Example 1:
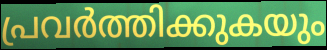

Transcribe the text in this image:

പ്രവർത്തിക്കുകയും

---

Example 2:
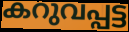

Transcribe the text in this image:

കറുവപ്പട്ട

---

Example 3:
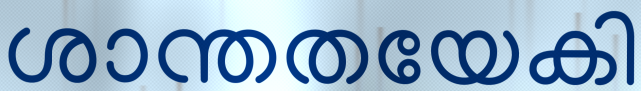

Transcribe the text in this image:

ശാന്തതയേകി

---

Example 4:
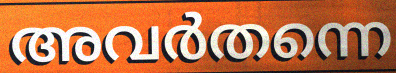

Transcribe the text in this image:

അവർതന്നെ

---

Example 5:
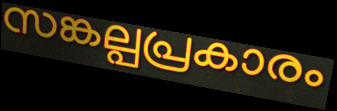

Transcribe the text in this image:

സങ്കല്പപ്രകാരം